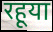
रहूया